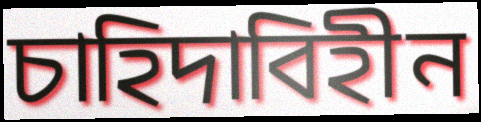
চাহিদাবিহীন